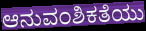
ಆನುವಂಶಿಕತೆಯು